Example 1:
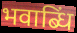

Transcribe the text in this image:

भवाब्धिं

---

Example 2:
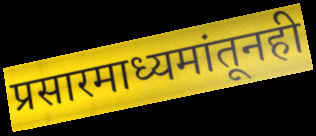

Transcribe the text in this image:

प्रसारमाध्यमांतूनही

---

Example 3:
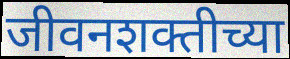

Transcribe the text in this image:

जीवनशक्तीच्या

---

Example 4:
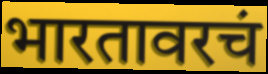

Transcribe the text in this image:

भारतावरचं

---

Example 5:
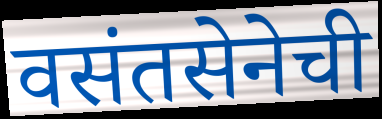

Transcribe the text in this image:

वसंतसेनेची